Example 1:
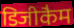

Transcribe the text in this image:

डिजीकैम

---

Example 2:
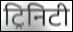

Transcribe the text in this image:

ट्रिनिटी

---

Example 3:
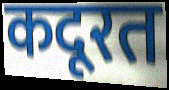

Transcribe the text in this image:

कदूरत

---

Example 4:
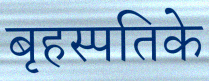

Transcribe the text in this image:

बृहस्पतिके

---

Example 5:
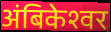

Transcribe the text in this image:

अंबिकेश्वर